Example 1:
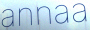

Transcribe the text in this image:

annaa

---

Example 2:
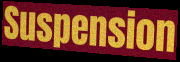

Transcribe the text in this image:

Suspension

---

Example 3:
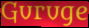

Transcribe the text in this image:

Guruge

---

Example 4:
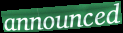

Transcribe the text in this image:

announced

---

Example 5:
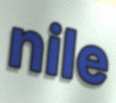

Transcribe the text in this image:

nile